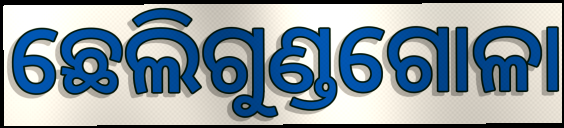
ଛେଲିଗୁଣ୍ଡଗୋଳା